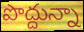
పొద్దున్నా